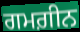
ਗਮਗ਼ੀਨ